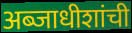
अब्जाधीशांची